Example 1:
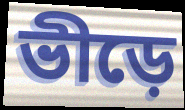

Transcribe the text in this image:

ভীড়ে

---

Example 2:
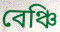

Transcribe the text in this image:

বেঞ্চি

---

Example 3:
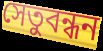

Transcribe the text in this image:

সেতুবন্ধন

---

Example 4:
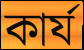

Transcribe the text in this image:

কার্য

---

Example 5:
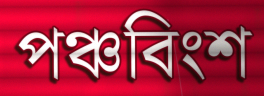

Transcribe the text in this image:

পঞ্চবিংশ